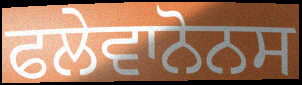
ਫਲੇਵਾਨੋਨਸ